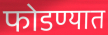
फोडण्यात